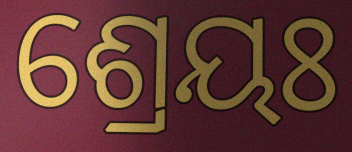
ଶ୍ରେୟଃ